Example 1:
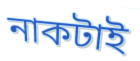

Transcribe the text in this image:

নাকটাই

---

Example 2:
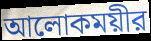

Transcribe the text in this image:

আলোকময়ীর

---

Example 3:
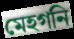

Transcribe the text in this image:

মেহগনি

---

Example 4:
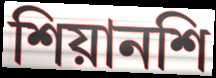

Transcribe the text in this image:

শিয়ানশি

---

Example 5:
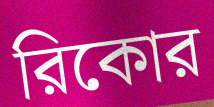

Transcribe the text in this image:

রিকোর